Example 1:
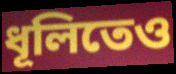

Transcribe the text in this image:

ধূলিতেও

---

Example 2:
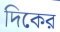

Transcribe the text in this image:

দিকের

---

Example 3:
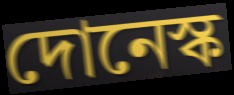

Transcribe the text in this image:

দোনেস্ক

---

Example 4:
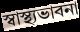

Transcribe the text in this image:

স্বাস্থ্যভাবনা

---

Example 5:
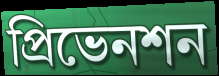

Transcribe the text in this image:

প্রিভেনশন